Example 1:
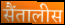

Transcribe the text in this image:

सैंतालीस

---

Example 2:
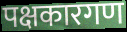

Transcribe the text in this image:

पक्षकारगण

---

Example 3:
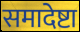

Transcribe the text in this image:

समादेष्टा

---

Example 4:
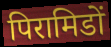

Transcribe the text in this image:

पिरामिडों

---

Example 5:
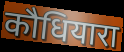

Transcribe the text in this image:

कौधियारा